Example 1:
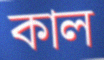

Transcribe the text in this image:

কাল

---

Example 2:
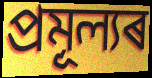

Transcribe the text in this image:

প্ৰমূল্যৰ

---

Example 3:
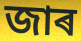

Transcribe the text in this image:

জাৰ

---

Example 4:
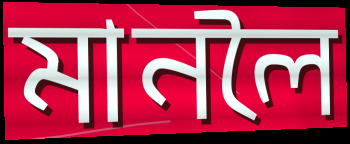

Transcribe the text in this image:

মানলৈ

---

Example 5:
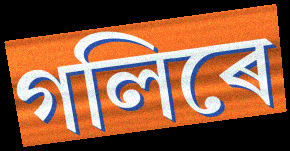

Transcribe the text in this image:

গলিৰে